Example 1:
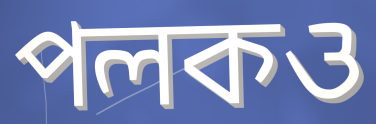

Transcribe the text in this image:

পলকও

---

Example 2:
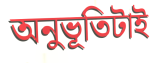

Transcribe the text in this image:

অনুভূতিটাই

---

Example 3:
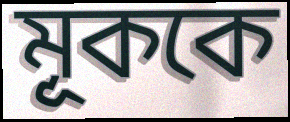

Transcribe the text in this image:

মূককে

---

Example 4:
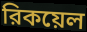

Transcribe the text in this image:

রিকয়েল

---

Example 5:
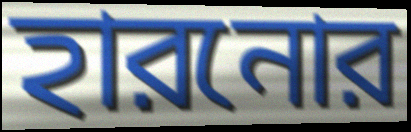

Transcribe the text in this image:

হারনোর